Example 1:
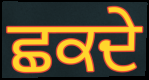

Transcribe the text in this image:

ਛਕਦੇ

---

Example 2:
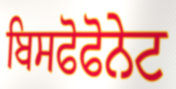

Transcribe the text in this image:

ਬਿਸਫੋਫੋਨੇਟ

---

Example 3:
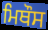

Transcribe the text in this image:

ਮਿਥੌਸ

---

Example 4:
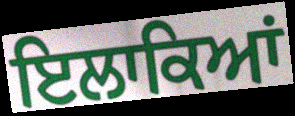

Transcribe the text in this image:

ਇਲਾਕਿਆਂ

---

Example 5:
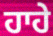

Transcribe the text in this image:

ਹਾਹੇ